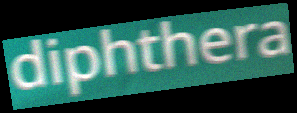
diphthera